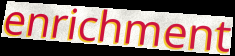
enrichment